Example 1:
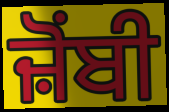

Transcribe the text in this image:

ਜ਼ੋਂਬੀ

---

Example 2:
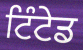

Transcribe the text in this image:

ਟਿੰਟੇਡ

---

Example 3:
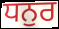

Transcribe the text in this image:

ਧਨੁਰ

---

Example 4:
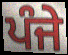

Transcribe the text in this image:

ਪੰਜੇ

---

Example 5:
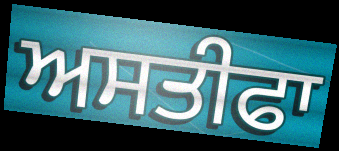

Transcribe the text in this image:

ਅਸਤੀਫਾ